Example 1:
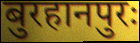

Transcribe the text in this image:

बुरहानपुरः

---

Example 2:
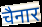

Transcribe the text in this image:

चैनार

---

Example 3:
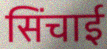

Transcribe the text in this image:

सिंचाई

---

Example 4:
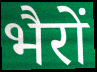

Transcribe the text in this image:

भैरों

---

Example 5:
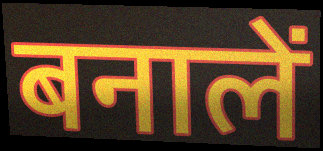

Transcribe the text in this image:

बनालें